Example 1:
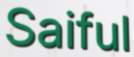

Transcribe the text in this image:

Saiful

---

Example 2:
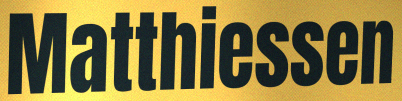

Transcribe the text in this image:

Matthiessen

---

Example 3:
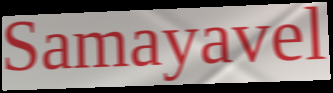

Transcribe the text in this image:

Samayavel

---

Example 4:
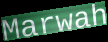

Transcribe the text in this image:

Marwah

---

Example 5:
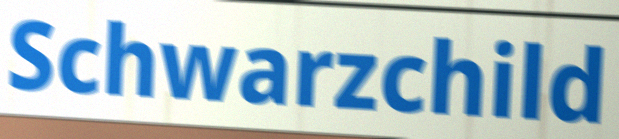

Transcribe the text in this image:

Schwarzchild